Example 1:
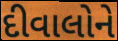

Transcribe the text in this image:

દીવાલોને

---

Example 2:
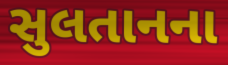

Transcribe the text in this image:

સુલતાનના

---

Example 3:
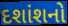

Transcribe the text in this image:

દશાંશનો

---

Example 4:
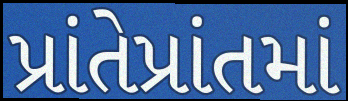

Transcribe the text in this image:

પ્રાંતેપ્રાંતમાં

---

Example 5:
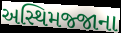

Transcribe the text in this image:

અસ્થિમજ્જાના